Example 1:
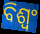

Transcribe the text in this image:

ବିଶ୍ୱଂ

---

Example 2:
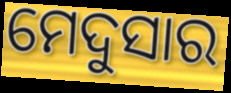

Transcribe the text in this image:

ମେଦୁସାର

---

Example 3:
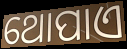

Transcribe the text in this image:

ଥୋପାଏ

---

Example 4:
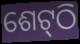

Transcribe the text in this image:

ଶେଟ୍‍ଠି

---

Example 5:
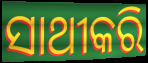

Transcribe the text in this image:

ସାଥୀକରି